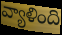
వ్యాళింది